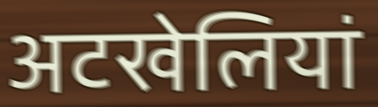
अटखेलियां